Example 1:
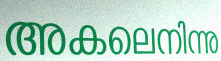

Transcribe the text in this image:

അകലെനിന്നു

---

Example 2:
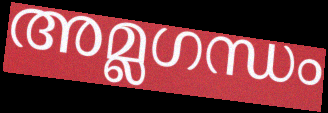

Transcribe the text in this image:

അമ്ലഗന്ധം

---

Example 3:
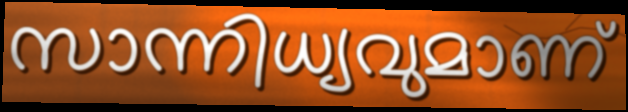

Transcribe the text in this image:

സാന്നിധ്യവുമാണ്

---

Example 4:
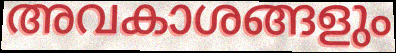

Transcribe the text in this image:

അവകാശങ്ങളും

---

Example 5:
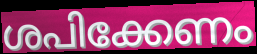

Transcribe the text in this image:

ശപിക്കേണം